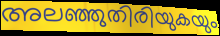
അലഞ്ഞുതിരിയുകയും